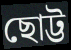
ছোট্ট